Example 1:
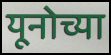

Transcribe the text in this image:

यूनोच्या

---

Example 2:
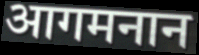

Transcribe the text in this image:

आगमनान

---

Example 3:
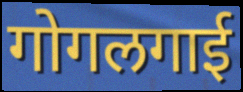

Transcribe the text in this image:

गोगलगाई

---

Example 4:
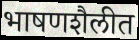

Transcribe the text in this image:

भाषणशैलीत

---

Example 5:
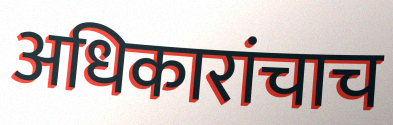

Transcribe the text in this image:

अधिकारांचाच